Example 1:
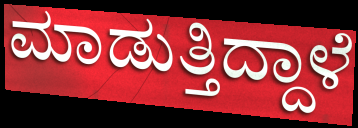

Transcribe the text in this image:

ಮಾಡುತ್ತಿದ್ದಾಳೆ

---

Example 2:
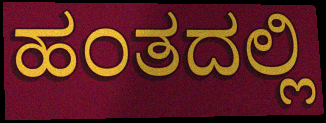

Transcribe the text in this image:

ಹಂತದಲ್ಲಿ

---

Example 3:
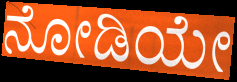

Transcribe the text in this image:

ನೋಡಿಯೇ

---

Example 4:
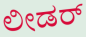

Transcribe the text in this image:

ಲೀಡರ್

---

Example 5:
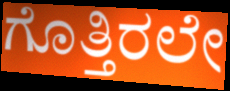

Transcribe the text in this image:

ಗೊತ್ತಿರಲೇ